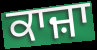
ਕਾਜ਼ਾ